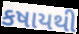
કષાયથી